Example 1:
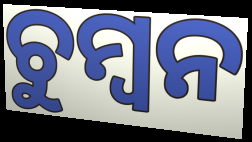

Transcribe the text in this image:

ଚୁମ୍ୱନ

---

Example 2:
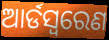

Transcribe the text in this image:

ଆର୍ଡସ୍ଵରେଣ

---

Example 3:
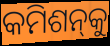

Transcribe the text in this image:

କମିଶନ୍‌କୁ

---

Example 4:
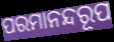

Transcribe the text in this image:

ପରମାନନ୍ଦରୂପ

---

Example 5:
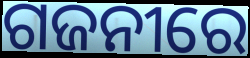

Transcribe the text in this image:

ଗଜନୀରେ